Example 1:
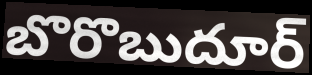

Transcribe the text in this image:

బొరొబుదూర్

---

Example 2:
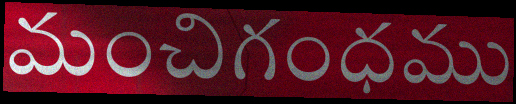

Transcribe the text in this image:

మంచిగంధము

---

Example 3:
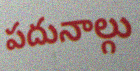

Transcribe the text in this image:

పదునాల్గు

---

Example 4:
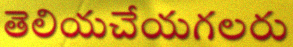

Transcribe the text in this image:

తెలియచేయగలరు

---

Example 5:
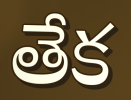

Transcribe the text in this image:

తేక